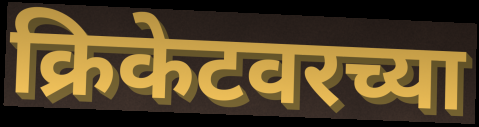
क्रिकेटवरच्या